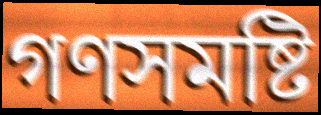
গণসমষ্টি